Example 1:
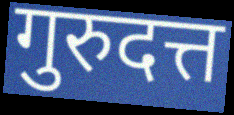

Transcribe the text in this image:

गुरुदत्त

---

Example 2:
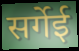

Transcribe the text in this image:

सर्गेई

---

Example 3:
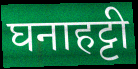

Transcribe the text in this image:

घनाहट्टी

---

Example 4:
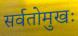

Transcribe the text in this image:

सर्वतोमुखः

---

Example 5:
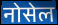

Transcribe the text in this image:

नोसेल